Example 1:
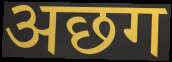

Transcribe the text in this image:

अछग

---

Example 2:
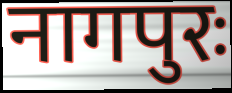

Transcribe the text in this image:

नागपुरः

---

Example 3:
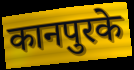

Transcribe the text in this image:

कानपुरके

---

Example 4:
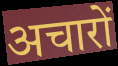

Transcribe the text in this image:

अचारों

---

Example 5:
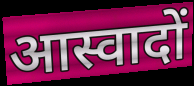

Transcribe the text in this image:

आस्वादों